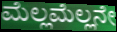
ಮೆಲ್ಲಮೆಲ್ಲನೇ